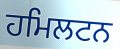
ਹਮਿਲਟਨ